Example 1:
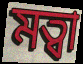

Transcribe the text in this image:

মত্বা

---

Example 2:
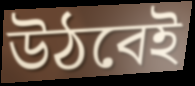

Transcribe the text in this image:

উঠবেই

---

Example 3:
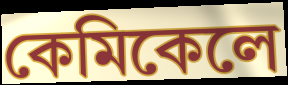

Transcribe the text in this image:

কেমিকেলে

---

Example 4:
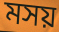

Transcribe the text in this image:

মসয়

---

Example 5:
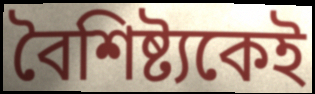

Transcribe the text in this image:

বৈশিষ্ট্যকেই